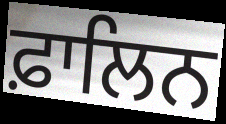
ਫ਼ਾਲਿਨ